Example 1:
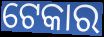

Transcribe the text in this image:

ଟେକାର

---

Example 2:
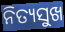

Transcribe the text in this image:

ନିତ୍ୟସୁଖ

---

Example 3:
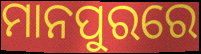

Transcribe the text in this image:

ମାନପୁରରେ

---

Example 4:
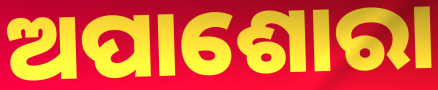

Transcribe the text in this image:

ଅପାଶୋରା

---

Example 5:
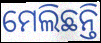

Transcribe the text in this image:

ମେଲିଛନ୍ତି